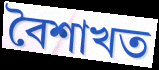
বৈশাখত